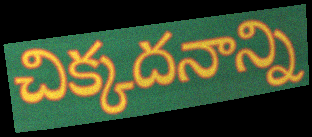
చిక్కదనాన్ని